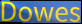
Dowes